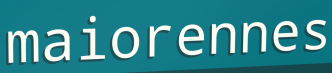
maiorennes